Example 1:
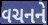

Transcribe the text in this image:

વચનને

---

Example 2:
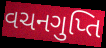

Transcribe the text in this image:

વચનગુપ્તિ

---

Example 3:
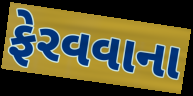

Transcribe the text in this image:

ફેરવવાના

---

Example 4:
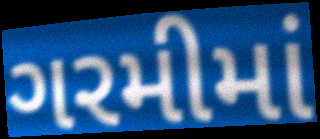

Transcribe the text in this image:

ગરમીમાં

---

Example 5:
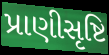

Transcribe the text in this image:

પ્રાણીસૃષ્ટિ